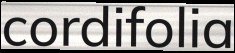
cordifolia